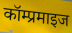
कॉम्प्रमाइज